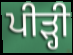
ਪੀੜ੍ਹੀ